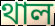
থাল